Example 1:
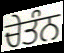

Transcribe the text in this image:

ਚੇਤੰਨ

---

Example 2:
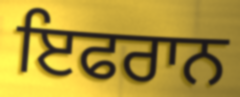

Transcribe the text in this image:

ਇਫਰਾਨ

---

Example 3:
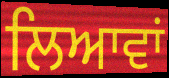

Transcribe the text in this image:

ਲਿਆਵਾਂ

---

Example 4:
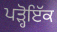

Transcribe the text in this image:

ਪੜ੍ਹੋਇੱਕ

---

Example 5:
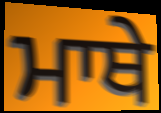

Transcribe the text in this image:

ਮਾਥੇ